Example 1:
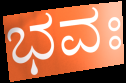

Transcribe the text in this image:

ಭವಃ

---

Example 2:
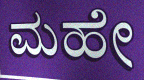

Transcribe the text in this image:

ಮಹೇ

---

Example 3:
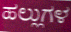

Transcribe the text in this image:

ಹಲ್ಲುಗಳ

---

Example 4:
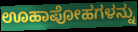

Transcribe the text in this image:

ಊಹಾಪೋಹಗಳನ್ನು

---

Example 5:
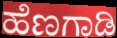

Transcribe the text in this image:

ಹೆಣಗಾಡಿ